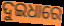
ଦୁଇଧାରେ